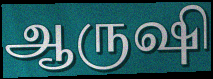
ஆருஷி